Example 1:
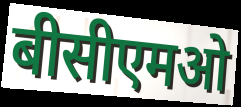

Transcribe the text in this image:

बीसीएमओ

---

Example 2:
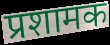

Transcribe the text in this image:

प्रशामक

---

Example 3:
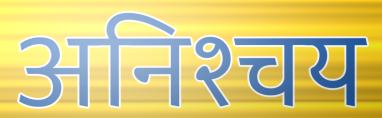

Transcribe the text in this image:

अनिश्चय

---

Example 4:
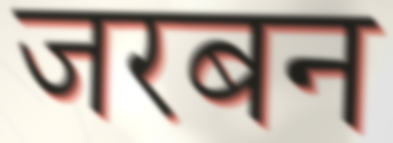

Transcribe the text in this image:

जरबन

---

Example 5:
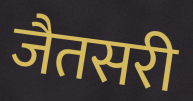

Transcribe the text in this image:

जैतसरी